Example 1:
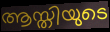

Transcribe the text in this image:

ആസ്തിയുടെ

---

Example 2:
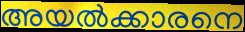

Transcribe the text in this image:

അയൽക്കാരനെ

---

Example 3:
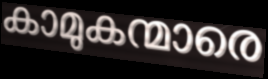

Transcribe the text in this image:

കാമുകന്മാരെ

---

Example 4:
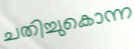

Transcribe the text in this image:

ചതിച്ചുകൊന്ന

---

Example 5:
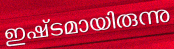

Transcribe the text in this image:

ഇഷ്‌ടമായിരുന്നു